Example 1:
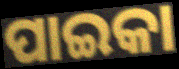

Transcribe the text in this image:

ପାଇକା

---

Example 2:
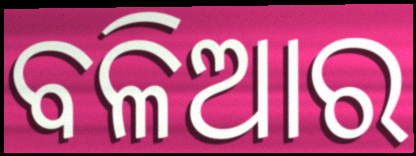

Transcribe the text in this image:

ବଳିଆର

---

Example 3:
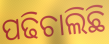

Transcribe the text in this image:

ପଢିଚାଲିଛି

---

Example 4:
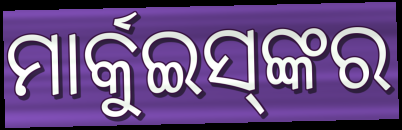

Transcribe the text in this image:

ମାର୍କୁଇସ୍‍ଙ୍କର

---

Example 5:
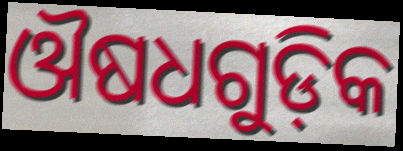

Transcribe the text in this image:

ଔଷଧଗୁଡ଼ିକ